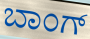
ಬಾಂಗ್